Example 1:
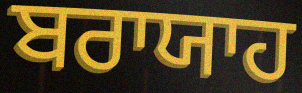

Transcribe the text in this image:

ਬਰਾਯਾਹ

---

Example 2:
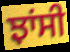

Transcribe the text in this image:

ਝਾਂਸੀ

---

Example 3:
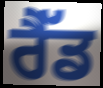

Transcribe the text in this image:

ਰੈੱਡ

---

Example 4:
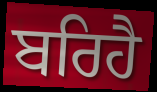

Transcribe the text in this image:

ਬਰਿਹੈ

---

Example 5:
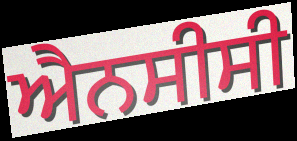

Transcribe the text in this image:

ਐਨਸੀਸੀ